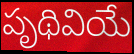
పృథివియే